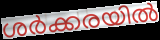
ശർക്കരയിൽ